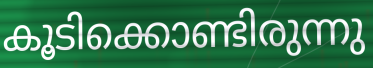
കൂടിക്കൊണ്ടിരുന്നു